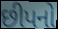
છીપનો